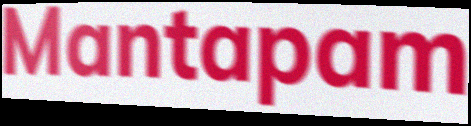
Mantapam